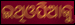
ଇଥିଓପିଆକୁ